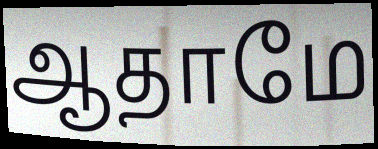
ஆதாமே